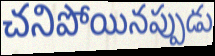
చనిపోయినప్పుడు